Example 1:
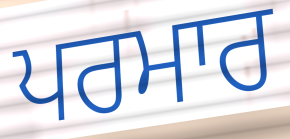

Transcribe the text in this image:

ਪਰਮਾਰ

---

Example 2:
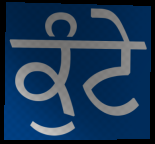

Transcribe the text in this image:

ਕੁੰਟੇ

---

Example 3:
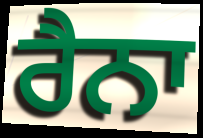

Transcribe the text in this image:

ਰੈਨਾ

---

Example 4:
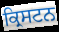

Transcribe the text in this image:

ਕ੍ਰਿਸਟਨ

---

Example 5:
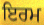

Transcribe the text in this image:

ਇਰਮ